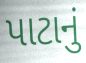
પાટાનું